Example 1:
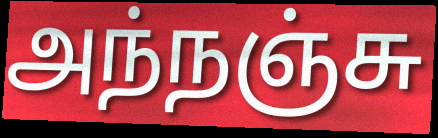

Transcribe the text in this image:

அந்நஞ்சு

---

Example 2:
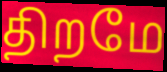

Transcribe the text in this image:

திறமே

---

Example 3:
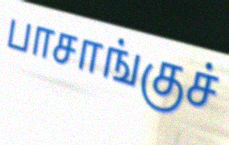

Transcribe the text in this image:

பாசாங்குச்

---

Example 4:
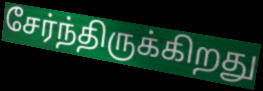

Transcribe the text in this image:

சேர்ந்திருக்கிறது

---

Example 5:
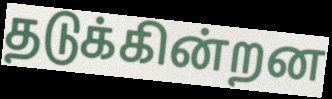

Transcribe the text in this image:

தடுக்கின்றன